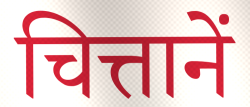
चित्तानें